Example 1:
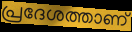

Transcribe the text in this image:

പ്രദേശത്താണ്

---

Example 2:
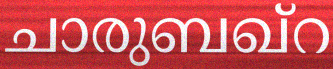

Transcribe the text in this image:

ചാരുബഖ്റ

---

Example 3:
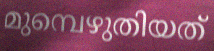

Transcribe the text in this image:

മുമ്പെഴുതിയത്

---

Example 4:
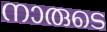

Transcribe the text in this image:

നാരുടെ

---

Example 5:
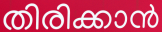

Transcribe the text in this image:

തിരിക്കാൻ